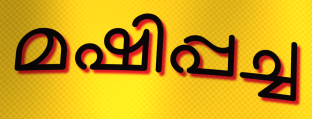
മഷിപ്പച്ച